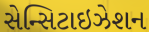
સેન્સિટાઇઝેશન